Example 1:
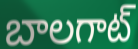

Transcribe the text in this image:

బాలగాట్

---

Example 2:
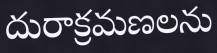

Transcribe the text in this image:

దురాక్రమణలను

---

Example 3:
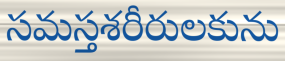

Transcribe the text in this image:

సమస్తశరీరులకును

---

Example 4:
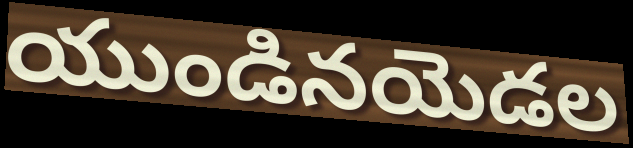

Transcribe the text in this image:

యుండినయెడల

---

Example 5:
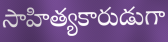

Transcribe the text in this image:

సాహిత్యకారుడుగా